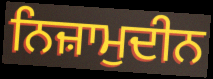
ਨਿਜ਼ਾਮੁਦੀਨ